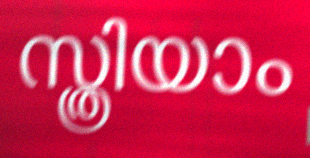
സ്ത്രിയാം